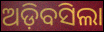
ଅଡ଼ିବସିଲା